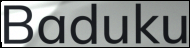
Baduku